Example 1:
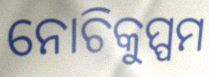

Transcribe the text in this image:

ନୋଚିକୁପ୍ପମ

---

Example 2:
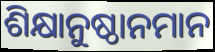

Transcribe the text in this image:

ଶିକ୍ଷାନୁଷ୍ଠାନମାନ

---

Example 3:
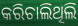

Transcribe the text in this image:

କରିଚାଲିଥିଲି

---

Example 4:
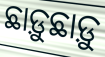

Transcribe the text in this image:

ଛାଡ଼ୁଛାଡ଼ୁ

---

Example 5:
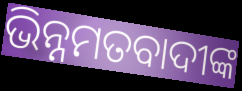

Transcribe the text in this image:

ଭିନ୍ନମତବାଦୀଙ୍କ